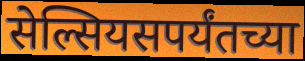
सेल्सियसपर्यंतच्या